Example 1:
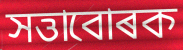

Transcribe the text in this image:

সত্তাবোৰক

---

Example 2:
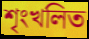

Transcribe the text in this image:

শৃংখলিত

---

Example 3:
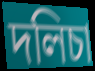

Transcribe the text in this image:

দলিচা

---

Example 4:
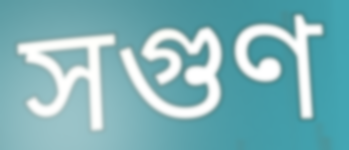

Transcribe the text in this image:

সগুণ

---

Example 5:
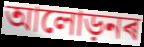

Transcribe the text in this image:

আলোড়নৰ